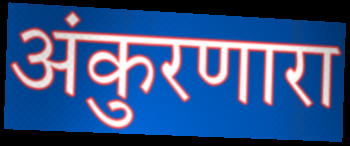
अंकुरणारा